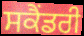
ਸਕੈੰਡਰੀ